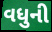
વધુની